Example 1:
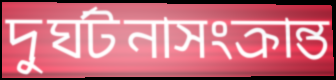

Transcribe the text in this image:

দুর্ঘটনাসংক্রান্ত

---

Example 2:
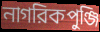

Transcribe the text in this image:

নাগরিকপুঞ্জি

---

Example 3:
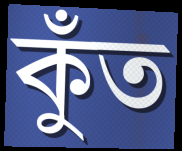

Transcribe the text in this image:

কুঁত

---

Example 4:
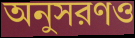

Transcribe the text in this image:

অনুসরণও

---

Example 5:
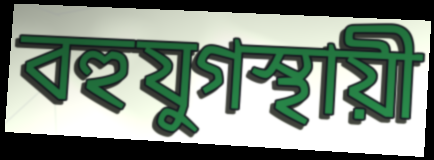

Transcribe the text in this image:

বহুযুগস্থায়ী